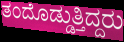
ತಂದೊಡ್ಡುತ್ತಿದ್ದರು